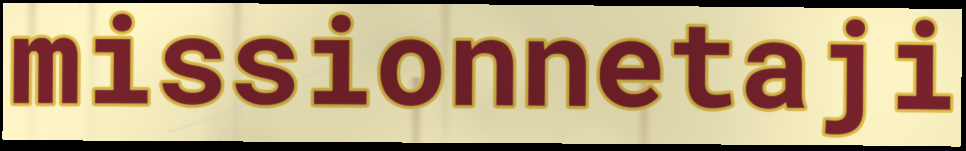
missionnetaji